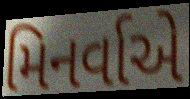
મિનર્વાએ